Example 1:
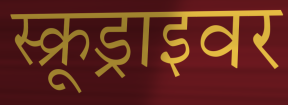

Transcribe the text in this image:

स्क्रूड्राइवर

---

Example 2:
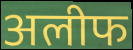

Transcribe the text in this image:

अलीफ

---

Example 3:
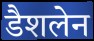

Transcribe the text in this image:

डैशलेन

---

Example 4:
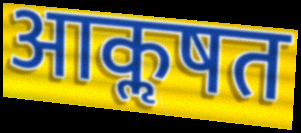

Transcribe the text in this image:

आकॢषत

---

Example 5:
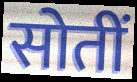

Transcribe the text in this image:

सोतीं